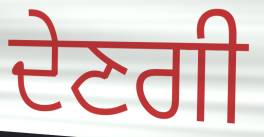
ਦੇਣਗੀ